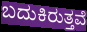
ಬದುಕಿರುತ್ತವೆ